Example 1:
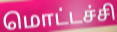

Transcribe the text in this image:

மொட்டச்சி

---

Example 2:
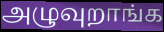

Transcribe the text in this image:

அழுவுறாங்க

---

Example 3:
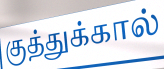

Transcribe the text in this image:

குத்துக்கால்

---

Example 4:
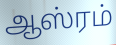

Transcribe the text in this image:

ஆஸ்ரம்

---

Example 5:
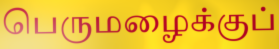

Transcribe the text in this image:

பெருமழைக்குப்